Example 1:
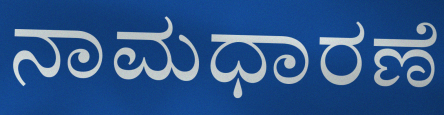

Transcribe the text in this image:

ನಾಮಧಾರಣೆ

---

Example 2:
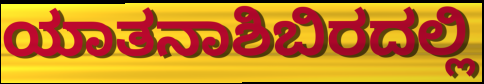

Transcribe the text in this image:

ಯಾತನಾಶಿಬಿರದಲ್ಲಿ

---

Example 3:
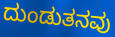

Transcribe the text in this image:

ದುಂಡುತನವು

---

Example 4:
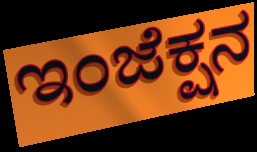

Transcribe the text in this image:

ಇಂಜೆಕ್ಷನ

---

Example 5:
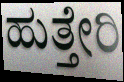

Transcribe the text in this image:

ಹುತ್ತೇರಿ